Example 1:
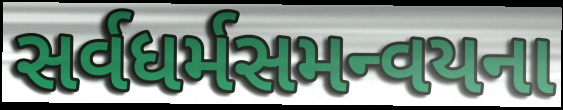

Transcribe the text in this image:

સર્વધર્મસમન્વયના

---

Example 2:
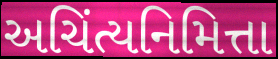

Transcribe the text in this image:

અચિંત્યનિમિત્તા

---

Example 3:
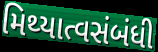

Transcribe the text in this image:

મિથ્યાત્વસંબંધી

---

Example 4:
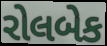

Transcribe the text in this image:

રોલબેક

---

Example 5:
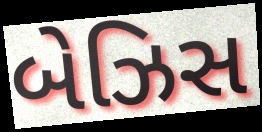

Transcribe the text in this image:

બેઝિસ